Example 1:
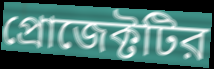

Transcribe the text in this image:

প্রোজেক্টটির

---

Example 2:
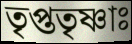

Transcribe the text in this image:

তৃপ্ততৃষ্ণাঃ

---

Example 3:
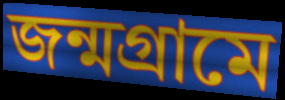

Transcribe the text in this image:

জন্মগ্রামে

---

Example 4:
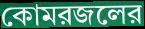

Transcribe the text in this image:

কোমরজলের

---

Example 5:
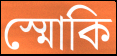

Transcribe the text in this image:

স্মোকি